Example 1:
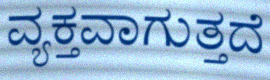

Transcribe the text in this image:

ವ್ಯಕ್ತವಾಗುತ್ತದೆ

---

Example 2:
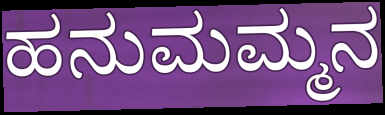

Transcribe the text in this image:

ಹನುಮಮ್ಮನ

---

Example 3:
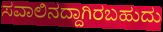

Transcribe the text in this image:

ಸವಾಲಿನದ್ದಾಗಿರಬಹುದು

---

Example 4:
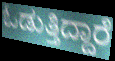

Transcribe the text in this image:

ಓಡುತ್ತಿದ್ದಾರೆ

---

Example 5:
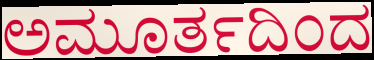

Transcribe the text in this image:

ಅಮೂರ್ತದಿಂದ